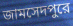
জামসেদপুরে